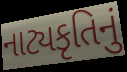
નાટ્યકૃતિનું